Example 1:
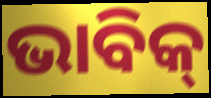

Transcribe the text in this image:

ଭାବିକ୍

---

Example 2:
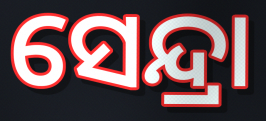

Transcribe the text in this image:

ସେନ୍ଦ୍ରା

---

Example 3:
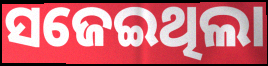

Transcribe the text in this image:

ସଜେଇଥିଲା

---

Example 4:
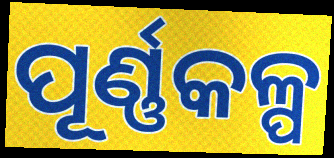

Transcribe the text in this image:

ପୂର୍ଣ୍ଣକଳ୍ପ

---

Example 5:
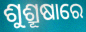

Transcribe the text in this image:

ଶୁଶ୍ରୂଷାରେ